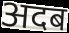
अदब